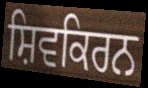
ਸ਼ਿਵਕਿਰਨ